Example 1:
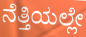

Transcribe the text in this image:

ನೆತ್ತಿಯಲ್ಲೇ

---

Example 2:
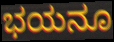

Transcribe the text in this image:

ಭಯನೂ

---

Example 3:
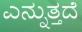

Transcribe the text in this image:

ಎನ್ನುತ್ತದೆ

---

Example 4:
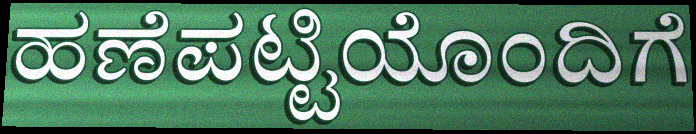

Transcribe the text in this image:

ಹಣೆಪಟ್ಟಿಯೊಂದಿಗೆ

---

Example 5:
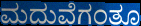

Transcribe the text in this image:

ಮದುವೆಗಂತೂ